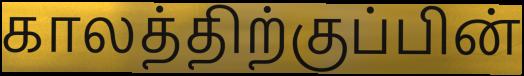
காலத்திற்குப்பின்